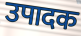
उपादक